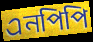
এনপিপি